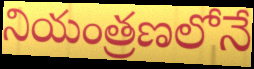
నియంత్రణలోనే